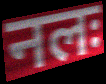
नलः